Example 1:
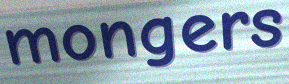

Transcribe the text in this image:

mongers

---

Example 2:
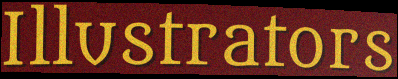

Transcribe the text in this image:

Illustrators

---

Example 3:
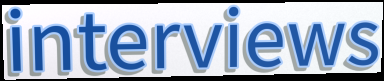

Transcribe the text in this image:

interviews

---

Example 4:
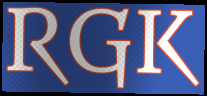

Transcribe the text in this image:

RGK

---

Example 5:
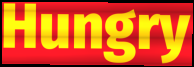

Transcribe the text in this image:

Hungry